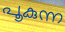
പൂകുന്ന